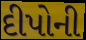
દીપોની